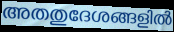
അതതുദേശങ്ങളിൽ